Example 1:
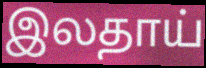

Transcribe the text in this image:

இலதாய்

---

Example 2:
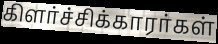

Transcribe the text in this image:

கிளர்ச்சிக்காரர்கள்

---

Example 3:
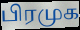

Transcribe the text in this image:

பிரமுக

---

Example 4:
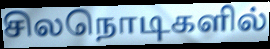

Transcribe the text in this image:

சிலநொடிகளில்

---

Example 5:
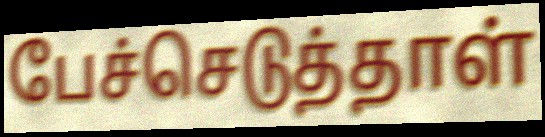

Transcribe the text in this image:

பேச்செடுத்தாள்